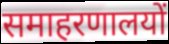
समाहरणालयों